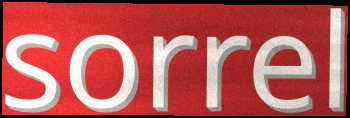
sorrel